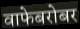
वाफेबरोबर